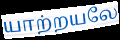
யாற்றயலே